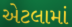
એટલામાં